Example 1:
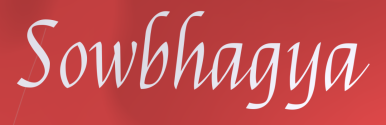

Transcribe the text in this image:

Sowbhagya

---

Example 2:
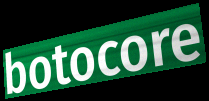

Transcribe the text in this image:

botocore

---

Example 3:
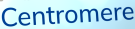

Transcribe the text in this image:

Centromere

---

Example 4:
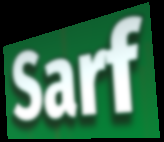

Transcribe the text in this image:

Sarf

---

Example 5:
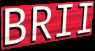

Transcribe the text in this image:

BRII